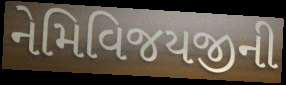
નેમિવિજયજીની